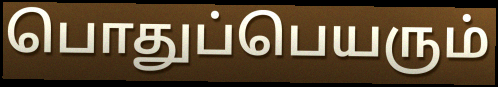
பொதுப்பெயரும்